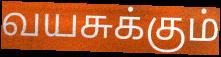
வயசுக்கும்